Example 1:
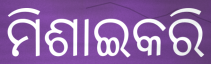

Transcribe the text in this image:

ମିଶାଇକରି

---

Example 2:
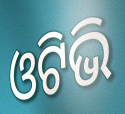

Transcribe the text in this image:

ଓଟିଭି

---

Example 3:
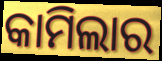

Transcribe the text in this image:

କାମିଲାର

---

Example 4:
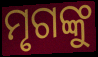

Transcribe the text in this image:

ମୃଗଙ୍କୁ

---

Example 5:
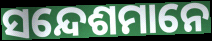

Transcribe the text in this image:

ସନ୍ଦେଶମାନେ